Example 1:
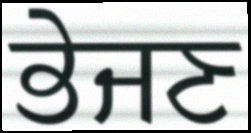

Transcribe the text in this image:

ਭੇਜਣ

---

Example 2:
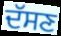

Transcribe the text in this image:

ਦੱਸਣ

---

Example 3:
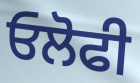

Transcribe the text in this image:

ਓਲੋਫੀ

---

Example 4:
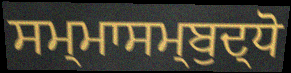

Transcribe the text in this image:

ਸਮ੍ਮਾਸਮ੍ਬੁਦ੍ਧੋ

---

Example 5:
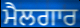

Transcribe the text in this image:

ਮੈਲਗਾਰ